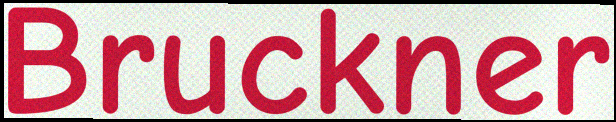
Bruckner